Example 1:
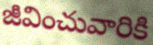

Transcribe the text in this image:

జీవించువారికి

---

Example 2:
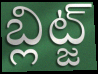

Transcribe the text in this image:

బ్లిట్జ్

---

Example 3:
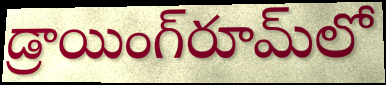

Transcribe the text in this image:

డ్రాయింగ్‌రూమ్‌లో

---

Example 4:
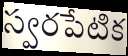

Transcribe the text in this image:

స్వరపేటిక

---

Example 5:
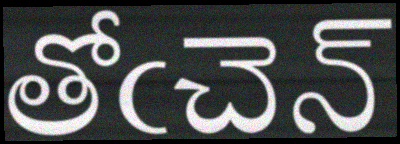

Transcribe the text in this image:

తోఁచెన్